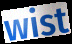
wist